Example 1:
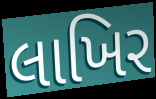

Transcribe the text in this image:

લાખિર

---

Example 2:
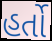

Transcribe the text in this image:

હર્તો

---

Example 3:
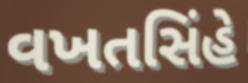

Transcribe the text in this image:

વખતસિંહે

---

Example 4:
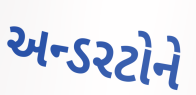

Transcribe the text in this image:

અન્ડરટોને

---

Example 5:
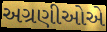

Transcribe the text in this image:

અગ્રણીઓએ